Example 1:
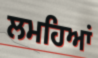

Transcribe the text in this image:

ਲਮਹਿਆਂ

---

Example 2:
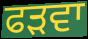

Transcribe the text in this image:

ਫੜਵਾ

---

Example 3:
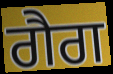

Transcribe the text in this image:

ਗੈਗ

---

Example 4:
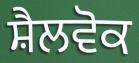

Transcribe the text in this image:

ਸ਼ੈਲਵੋਕ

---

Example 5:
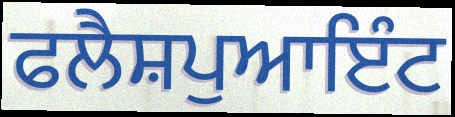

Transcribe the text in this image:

ਫਲੈਸ਼ਪੁਆਇੰਟ